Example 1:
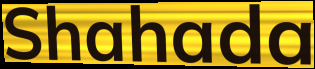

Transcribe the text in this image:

Shahada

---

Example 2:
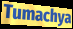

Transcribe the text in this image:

Tumachya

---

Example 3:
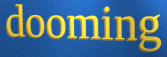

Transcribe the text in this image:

dooming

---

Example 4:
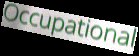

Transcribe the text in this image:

Occupational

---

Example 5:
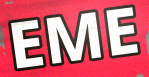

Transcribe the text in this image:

EME